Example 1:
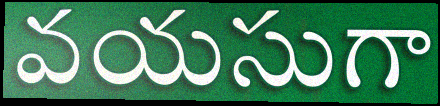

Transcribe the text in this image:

వయసుగా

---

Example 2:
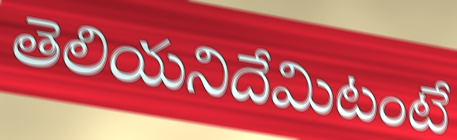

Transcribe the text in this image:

తెలియనిదేమిటంటే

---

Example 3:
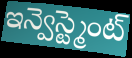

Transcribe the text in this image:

ఇన్వెస్ట్మెంట్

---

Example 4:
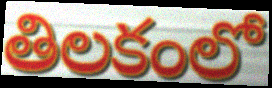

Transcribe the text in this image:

తిలకంలో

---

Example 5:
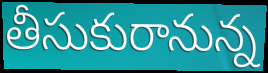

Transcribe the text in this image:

తీసుకురానున్న